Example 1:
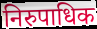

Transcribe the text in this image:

निरुपाधिक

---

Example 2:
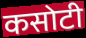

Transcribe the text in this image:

कसोटी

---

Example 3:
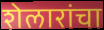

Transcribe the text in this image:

शेलारांचा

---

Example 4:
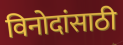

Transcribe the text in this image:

विनोदांसाठी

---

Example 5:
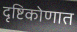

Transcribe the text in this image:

दृष्टिकोणात